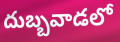
దుబ్బవాడలో